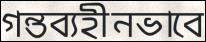
গন্তব্যহীনভাবে